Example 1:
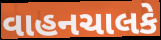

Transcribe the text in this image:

વાહનચાલકે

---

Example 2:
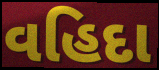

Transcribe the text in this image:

વહિદા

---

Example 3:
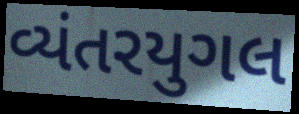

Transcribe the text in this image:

વ્યંતરયુગલ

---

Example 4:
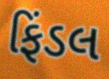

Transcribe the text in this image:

ફિંડલ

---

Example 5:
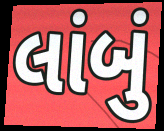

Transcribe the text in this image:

લાંબું